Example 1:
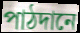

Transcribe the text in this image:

পাঠদানে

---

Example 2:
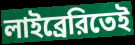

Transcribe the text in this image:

লাইব্রেরিতেই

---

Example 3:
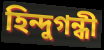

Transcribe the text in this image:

হিন্দুগন্ধী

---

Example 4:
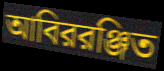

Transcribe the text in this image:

আবিররঞ্জিত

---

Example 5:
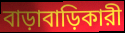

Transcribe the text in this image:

বাড়াবাড়িকারী